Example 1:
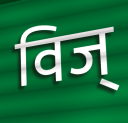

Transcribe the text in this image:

विज्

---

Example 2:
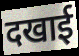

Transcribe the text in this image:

दखाई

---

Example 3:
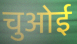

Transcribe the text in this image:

चुओई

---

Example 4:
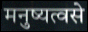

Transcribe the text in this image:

मनुष्यत्वसे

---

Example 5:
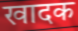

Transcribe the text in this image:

खादक